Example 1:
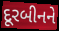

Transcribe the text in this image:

દૂરબીનને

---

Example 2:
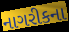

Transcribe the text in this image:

નાગરીકના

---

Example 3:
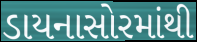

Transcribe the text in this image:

ડાયનાસોરમાંથી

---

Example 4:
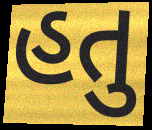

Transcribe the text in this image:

હતુ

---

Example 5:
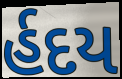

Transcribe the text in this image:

ર્હદય